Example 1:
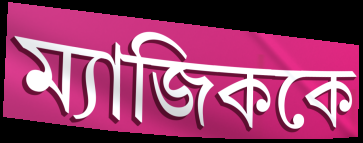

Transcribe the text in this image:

ম্যাজিককে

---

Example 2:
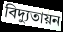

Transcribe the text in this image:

বিদ্যুতায়ন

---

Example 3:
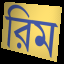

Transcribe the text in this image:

রিম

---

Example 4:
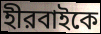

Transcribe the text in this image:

হীরবাইকে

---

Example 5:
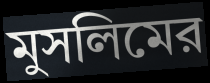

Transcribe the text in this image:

মুসলিমের